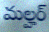
మల్హర్